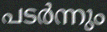
പടർന്നും